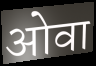
ओवा